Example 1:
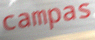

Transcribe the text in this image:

campas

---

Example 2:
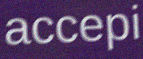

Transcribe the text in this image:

accepi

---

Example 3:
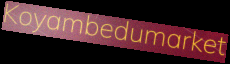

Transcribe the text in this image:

Koyambedumarket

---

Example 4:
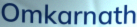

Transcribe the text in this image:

Omkarnath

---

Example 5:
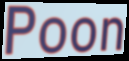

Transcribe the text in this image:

Poon